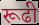
रूढी